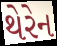
થેરેન